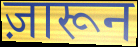
ज़ारून